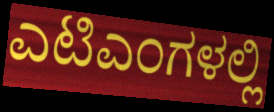
ಎಟಿಎಂಗಳಲ್ಲಿ